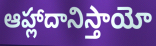
ఆహ్లాదానిస్తాయో